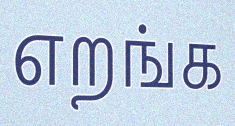
எறங்க